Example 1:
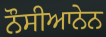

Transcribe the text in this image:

ਨੌਸੀਆਨੇਨ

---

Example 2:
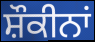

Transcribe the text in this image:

ਸ਼ੌਕੀਨਾਂ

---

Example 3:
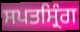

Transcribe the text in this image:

ਸਪਤਸ੍ਰਿੰਗ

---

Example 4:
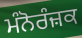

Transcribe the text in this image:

ਮੰਨੋਰੰਜ਼ਕ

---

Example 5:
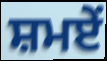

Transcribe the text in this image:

ਸ਼ਮਏਂ